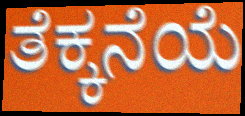
ತೆಕ್ಕನೆಯೆ